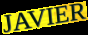
JAVIER